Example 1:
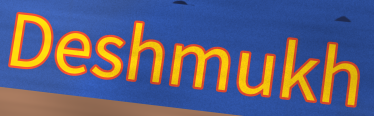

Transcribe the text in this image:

Deshmukh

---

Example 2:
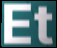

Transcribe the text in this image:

Et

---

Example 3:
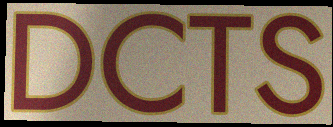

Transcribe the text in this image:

DCTS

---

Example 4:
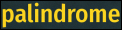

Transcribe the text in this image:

palindrome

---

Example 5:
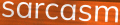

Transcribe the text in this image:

sarcasm